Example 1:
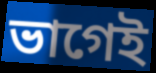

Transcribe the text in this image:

ভাগেই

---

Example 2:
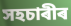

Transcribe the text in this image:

সহচাৰীৰ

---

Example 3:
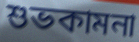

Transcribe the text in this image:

শুভকামনা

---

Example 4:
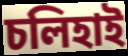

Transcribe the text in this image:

চলিহাই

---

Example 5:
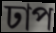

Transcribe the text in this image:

ঢাপ